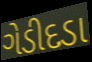
ગેડીદડા